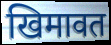
खिमावत